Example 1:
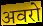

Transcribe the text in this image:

अवरो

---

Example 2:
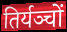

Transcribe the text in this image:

तिर्यञ्चों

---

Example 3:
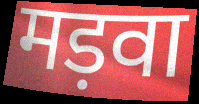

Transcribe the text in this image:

मड़वा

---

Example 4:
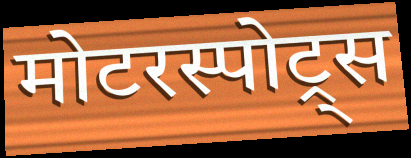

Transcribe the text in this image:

मोटरस्पोट्र्स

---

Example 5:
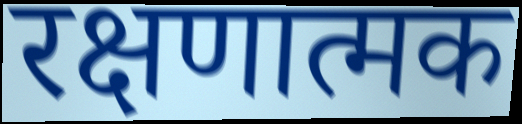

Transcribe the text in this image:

रक्षणात्मक